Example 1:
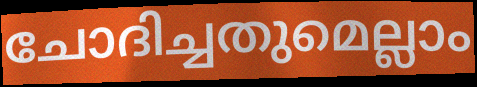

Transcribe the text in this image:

ചോദിച്ചതുമെല്ലാം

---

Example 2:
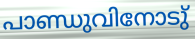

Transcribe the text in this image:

പാണ്ഡുവിനോടു്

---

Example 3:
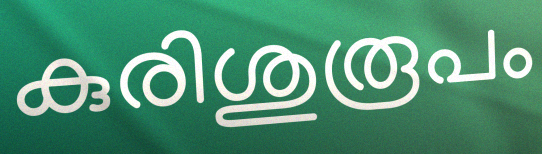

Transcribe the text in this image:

കുരിശുരൂപം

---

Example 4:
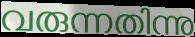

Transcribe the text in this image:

വരുന്നതിന്നു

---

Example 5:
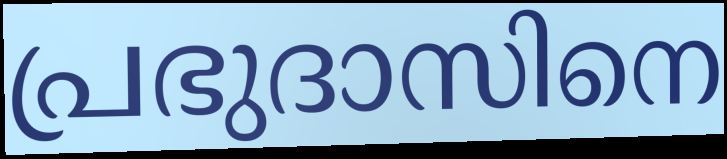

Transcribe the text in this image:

പ്രഭുദാസിനെ